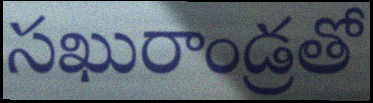
సఖురాండ్రతో